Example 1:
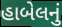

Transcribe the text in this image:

હાબેલનું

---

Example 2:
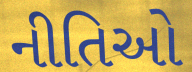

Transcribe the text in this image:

નીતિઓ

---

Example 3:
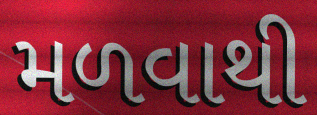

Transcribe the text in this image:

મળવાથી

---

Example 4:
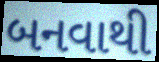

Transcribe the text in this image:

બનવાથી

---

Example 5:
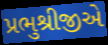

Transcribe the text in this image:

પ્રભુશ્રીજીએ